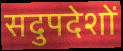
सदुपदेशों